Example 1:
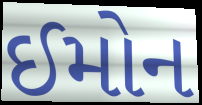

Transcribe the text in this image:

ઈમોન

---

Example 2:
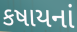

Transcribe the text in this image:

કષાયનાં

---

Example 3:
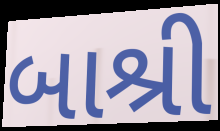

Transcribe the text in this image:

બાશ્રી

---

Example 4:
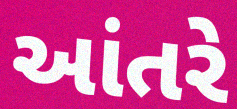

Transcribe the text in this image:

આંતરે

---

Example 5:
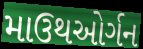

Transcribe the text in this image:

માઉથઓર્ગન